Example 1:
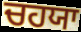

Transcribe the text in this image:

ਚਹਯਾ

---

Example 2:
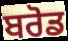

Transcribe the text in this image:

ਬਰੋਡ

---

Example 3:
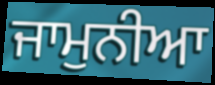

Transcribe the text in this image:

ਜਾਮੁਨੀਆ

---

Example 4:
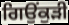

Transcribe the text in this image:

ਗਿਉਂਕੁੜੀ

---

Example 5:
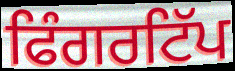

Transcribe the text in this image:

ਫਿੰਗਰਟਿੱਪ